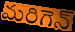
మరిగెన్